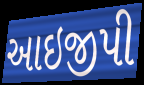
આઇજીપી